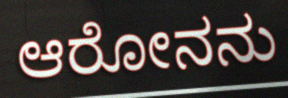
ಆರೋನನು